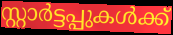
സ്റ്റാർട്ടപ്പുകൾക്ക്